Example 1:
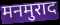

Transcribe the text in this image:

मनमुराद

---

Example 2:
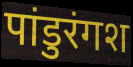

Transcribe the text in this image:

पांडुरंगश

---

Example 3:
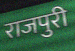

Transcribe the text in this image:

राजपुरी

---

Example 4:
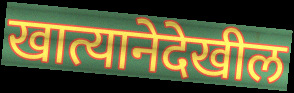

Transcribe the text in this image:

खात्यानेदेखील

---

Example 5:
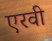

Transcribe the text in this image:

एरवी